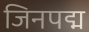
जिनपद्म